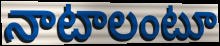
నాటాలంటూ